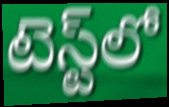
టెస్ట్‌లో